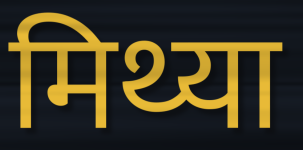
मिथ्‍या